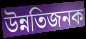
উন্নতিজনক